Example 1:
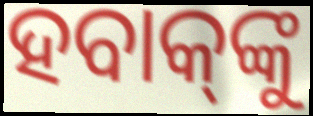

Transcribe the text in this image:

ହବାକ୍‌ଙ୍କୁ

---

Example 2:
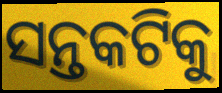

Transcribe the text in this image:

ସନ୍ତକଟିକୁ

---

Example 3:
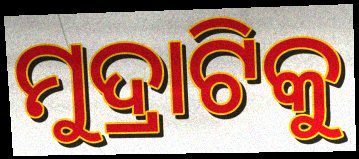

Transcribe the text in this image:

ମୁଦ୍ରାଟିକୁ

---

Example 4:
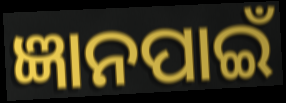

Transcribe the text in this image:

ଜ୍ଞାନପାଇଁ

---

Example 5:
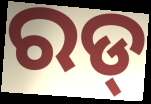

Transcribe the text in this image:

ରଡ୍